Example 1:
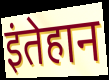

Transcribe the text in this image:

इंतेहान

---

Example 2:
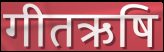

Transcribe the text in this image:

गीतऋषि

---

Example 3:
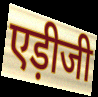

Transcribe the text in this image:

एड़ीजी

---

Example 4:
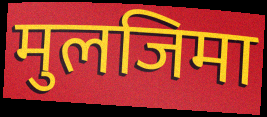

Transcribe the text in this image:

मुलजिमा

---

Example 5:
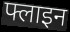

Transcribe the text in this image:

फ्लाइन